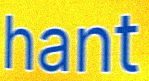
hant